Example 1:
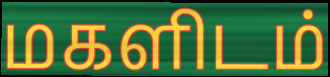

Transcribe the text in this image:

மகளிடம்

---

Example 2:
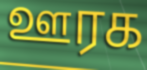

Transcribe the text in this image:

ஊரக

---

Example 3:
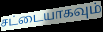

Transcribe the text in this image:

சட்டையாகவும்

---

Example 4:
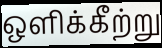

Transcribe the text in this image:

ஒளிக்கீற்று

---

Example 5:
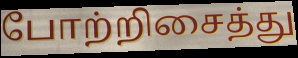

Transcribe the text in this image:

போற்றிசைத்து